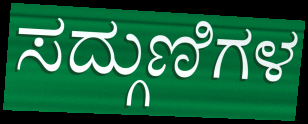
ಸದ್ಗುಣಿಗಳ